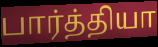
பார்த்தியா